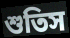
শুতিস